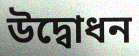
উদ্বোধন